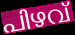
പിഴവ്